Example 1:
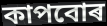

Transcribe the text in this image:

কাপবোৰ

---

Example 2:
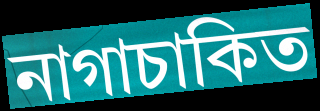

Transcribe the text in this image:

নাগাচাকিত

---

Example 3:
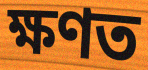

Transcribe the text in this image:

ক্ষণত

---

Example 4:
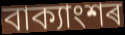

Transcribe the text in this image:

বাক্যাংশৰ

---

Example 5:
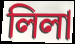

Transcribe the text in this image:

লিলা